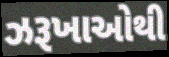
ઝરૂખાઓથી